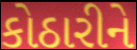
કોઠારીને